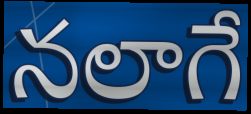
నలాగే